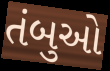
તંબુઓ